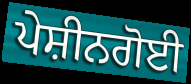
ਪੇਸ਼ੀਨਗੋਈ